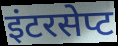
इंटरसेप्ट